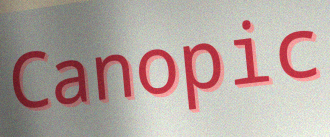
Canopic